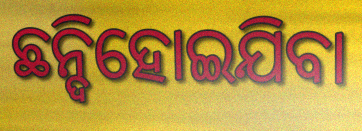
ଛନ୍ଦିହୋଇଯିବା